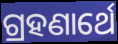
ଗ୍ରହଣାର୍ଥେ